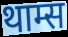
थाम्स